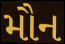
મૌન